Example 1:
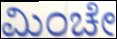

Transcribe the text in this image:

ಮಿಂಚೇ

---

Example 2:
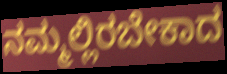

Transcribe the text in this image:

ನಮ್ಮಲ್ಲಿರಬೇಕಾದ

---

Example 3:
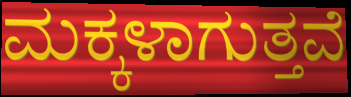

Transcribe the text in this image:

ಮಕ್ಕಳಾಗುತ್ತವೆ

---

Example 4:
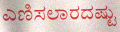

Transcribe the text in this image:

ಎಣಿಸಲಾರದಷ್ಟು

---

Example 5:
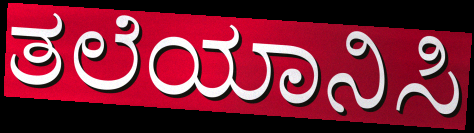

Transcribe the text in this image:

ತಲೆಯಾನಿಸಿ